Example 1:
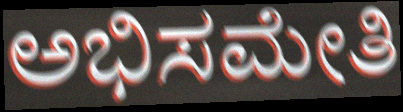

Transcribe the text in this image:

ಅಭಿಸಮೇತಿ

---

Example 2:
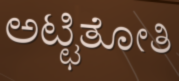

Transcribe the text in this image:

ಅಟ್ಟಿತೋತಿ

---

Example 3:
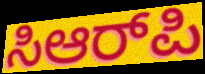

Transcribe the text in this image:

ಸಿಆರ್‌ಪಿ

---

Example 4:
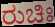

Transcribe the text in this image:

ರುಚಿಃ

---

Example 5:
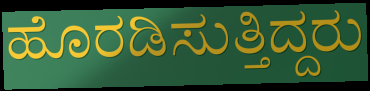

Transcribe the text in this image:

ಹೊರಡಿಸುತ್ತಿದ್ದರು